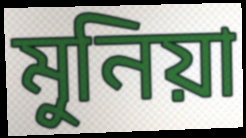
মুনিয়া